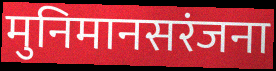
मुनिमानसरंजना